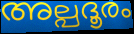
അല്പദൂരം